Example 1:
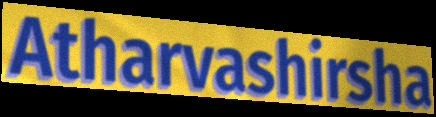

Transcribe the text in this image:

Atharvashirsha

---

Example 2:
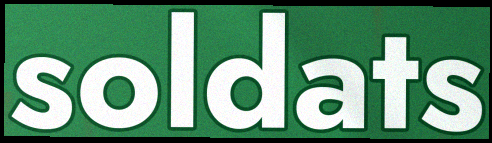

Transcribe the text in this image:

soldats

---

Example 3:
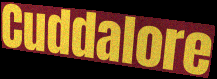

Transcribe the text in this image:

Cuddalore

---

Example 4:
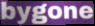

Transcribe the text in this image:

bygone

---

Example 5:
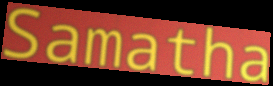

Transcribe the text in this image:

Samatha